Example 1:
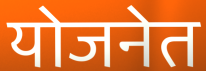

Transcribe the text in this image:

योजनेत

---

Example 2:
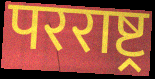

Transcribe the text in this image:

परराष्ट्र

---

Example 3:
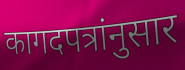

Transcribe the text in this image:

कागदपत्रांनुसार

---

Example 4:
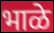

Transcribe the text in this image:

भाळे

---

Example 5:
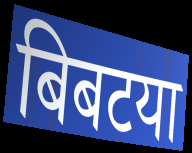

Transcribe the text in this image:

बिबटया